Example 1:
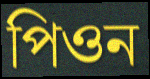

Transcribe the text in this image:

পিওন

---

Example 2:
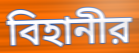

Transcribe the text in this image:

বিহানীর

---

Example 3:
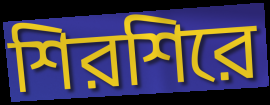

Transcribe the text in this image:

শিরশিরে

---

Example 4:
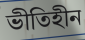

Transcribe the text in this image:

ভীতিহীন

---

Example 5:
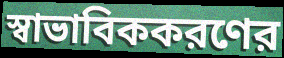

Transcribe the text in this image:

স্বাভাবিককরণের